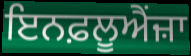
ਇਨਫ਼ਲੂਐਂਜ਼ਾ